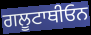
ਗਲੂਟਾਥੀਓਨ